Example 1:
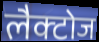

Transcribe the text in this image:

लैक्‍टोज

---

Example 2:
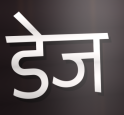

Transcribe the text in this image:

डेज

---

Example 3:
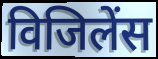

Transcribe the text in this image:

विजिलेंस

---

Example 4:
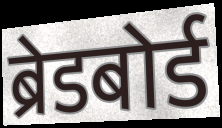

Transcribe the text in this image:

ब्रेडबोर्ड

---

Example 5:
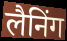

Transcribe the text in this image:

लैनिंग